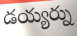
డయ్యర్ను